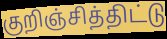
குறிஞ்சித்திட்டு